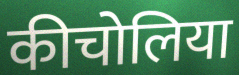
कीचोलिया